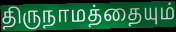
திருநாமத்தையும்